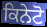
ਕਿਨੇਟੋ